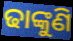
ଢାଙ୍କୁଣି